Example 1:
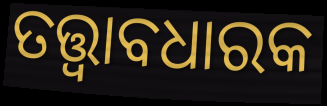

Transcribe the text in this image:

ତତ୍ତ୍ୱାବଧାରକ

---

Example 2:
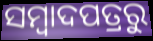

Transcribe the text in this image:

ସମ୍ବାଦପତ୍ରରୁ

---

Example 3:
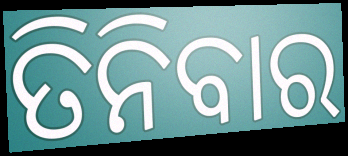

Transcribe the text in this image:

ତିନିବାର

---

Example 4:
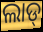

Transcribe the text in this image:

ଲାଡ୍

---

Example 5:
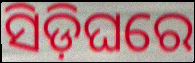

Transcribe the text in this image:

ସିଡ଼ିଘରେ